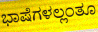
ಭಾಷೆಗಳಲ್ಲಂತೂ